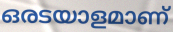
ഒരടയാളമാണ്